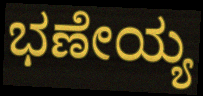
ಭಣೇಯ್ಯ